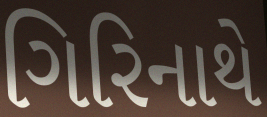
ગિરિનાથે